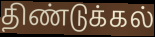
திண்டுக்கல்